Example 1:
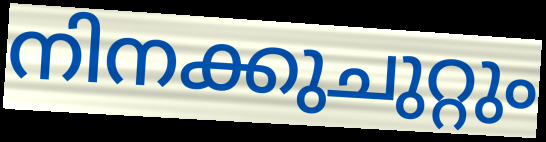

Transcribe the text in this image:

നിനക്കുചുറ്റും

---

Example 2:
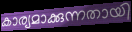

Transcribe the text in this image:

കാര്യമാക്കുന്നതായി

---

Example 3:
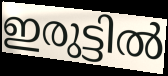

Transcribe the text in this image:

ഇരുട്ടിൽ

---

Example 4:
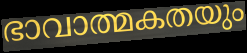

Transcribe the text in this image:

ഭാവാത്മകതയും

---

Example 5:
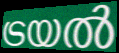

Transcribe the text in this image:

ട്രയൽ